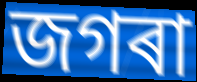
জগৰা